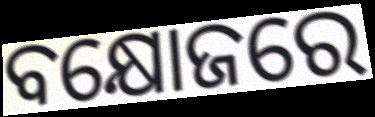
ବକ୍ଷୋଜରେ